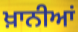
ਖ਼ਾਨੀਆਂ